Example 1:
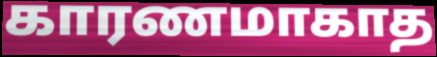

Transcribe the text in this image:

காரணமாகாத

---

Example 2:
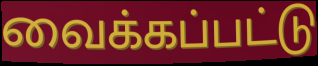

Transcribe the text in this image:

வைக்கப்பட்டு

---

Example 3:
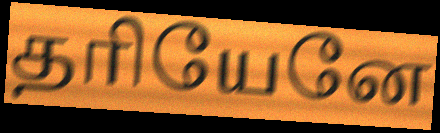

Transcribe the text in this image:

தரியேனே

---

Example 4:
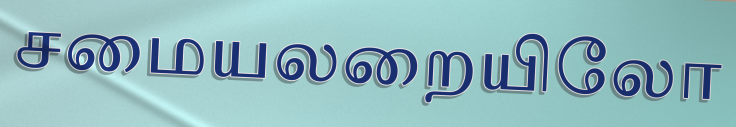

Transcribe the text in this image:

சமையலறையிலோ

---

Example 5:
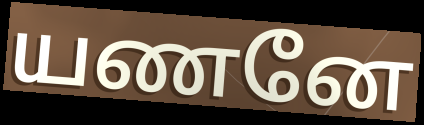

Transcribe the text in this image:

யணனே